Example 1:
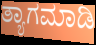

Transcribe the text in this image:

ತ್ಯಾಗಮಾಡಿ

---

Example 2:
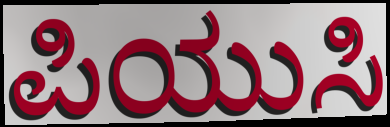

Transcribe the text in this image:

ಪಿಯುಸಿ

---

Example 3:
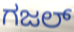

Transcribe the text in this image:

ಗಜಲ್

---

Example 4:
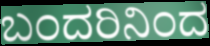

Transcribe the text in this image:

ಬಂದರಿನಿಂದ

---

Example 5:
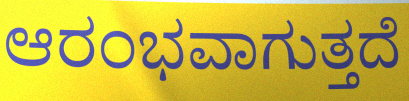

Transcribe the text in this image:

ಆರಂಭವಾಗುತ್ತದೆ